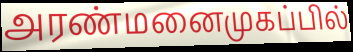
அரண்மனைமுகப்பில்